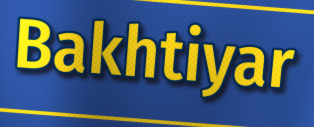
Bakhtiyar